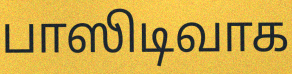
பாஸிடிவாக